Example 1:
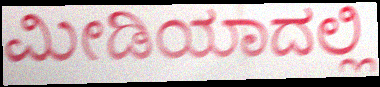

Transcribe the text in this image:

ಮೀಡಿಯಾದಲ್ಲಿ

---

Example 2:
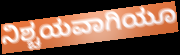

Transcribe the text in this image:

ನಿಶ್ಚಯವಾಗಿಯೂ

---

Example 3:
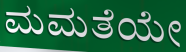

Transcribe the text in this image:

ಮಮತೆಯೇ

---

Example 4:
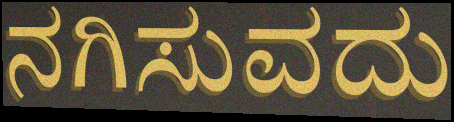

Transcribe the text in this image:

ನಗಿಸುವದು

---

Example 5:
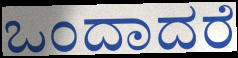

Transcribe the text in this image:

ಒಂದಾದರೆ